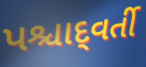
પશ્ચાદ્‌વર્તી